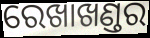
ରେଖାଖଣ୍ଡର